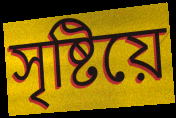
সৃষ্টিয়ে